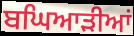
ਬਘਿਆੜੀਆਂ